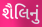
શૈલિનું